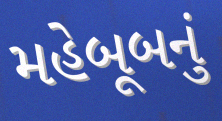
મહેબૂબનું